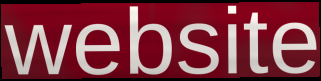
website